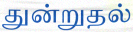
துன்றுதல்